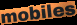
mobiles